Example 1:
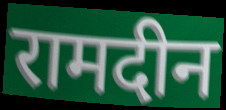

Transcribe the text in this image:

रामदीन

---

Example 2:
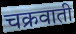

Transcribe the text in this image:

चक्रवाती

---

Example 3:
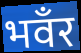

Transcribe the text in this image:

भवँर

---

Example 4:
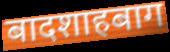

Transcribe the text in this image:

बादशाहबाग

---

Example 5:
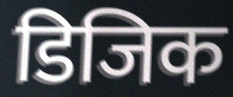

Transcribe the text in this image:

डिजिक